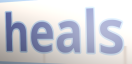
heals